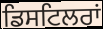
ਡਿਸਟਿਲਰਾਂ